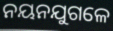
ନୟନଯୁଗଳେ